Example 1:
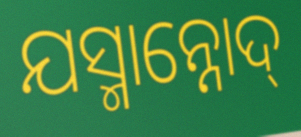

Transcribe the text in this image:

ଯସ୍ମାନ୍ନୋଦ୍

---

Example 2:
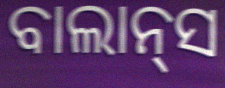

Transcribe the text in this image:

ବାଲାନ୍‌ସ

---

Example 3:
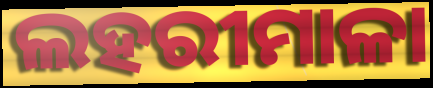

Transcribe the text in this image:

ଲହରୀମାଳା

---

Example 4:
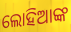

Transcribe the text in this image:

ଲୋହିଆଙ୍କ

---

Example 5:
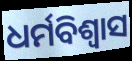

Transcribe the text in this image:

ଧର୍ମବିଶ୍ବାସ